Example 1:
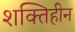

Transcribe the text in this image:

शक्तिहीन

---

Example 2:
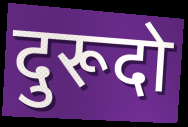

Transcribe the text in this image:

दुरूदो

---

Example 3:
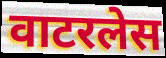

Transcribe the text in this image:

वाटरलेस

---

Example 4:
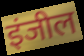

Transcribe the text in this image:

इंजील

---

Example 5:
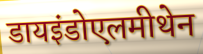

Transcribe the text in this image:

डायइंडोएलमीथेन